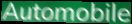
Automobile